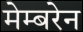
मेम्बरेन